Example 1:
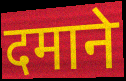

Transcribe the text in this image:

दमाने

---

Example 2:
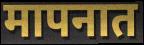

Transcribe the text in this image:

मापनात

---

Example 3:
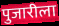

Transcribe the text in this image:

पुजारीला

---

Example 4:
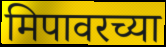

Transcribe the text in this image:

मिपावरच्या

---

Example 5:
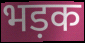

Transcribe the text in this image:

भड़क